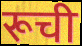
रूची